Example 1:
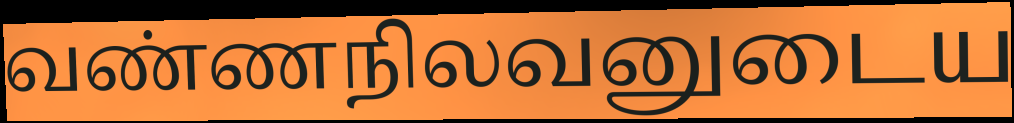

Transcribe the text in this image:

வண்ணநிலவனுடைய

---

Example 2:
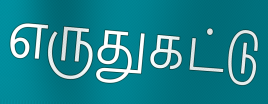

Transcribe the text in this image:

எருதுகட்டு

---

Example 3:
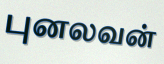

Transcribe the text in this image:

புனலவன்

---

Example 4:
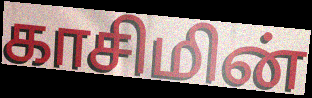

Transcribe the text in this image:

காசிமின்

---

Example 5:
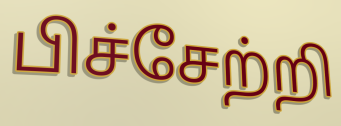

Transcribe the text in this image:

பிச்சேற்றி